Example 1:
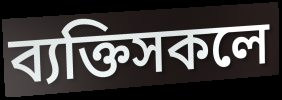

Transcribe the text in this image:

ব্যক্তিসকলে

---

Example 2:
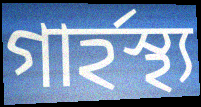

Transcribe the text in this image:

গাৰ্হস্থ্য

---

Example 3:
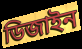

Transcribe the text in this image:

ডিজাইন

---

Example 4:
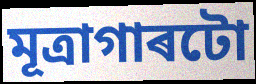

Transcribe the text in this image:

মূত্ৰাগাৰটো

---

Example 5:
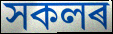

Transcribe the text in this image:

সকলৰ